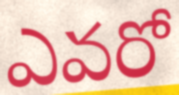
ఎవరో